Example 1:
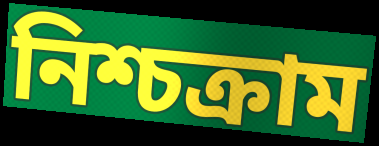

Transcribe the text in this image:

নিশ্চক্রাম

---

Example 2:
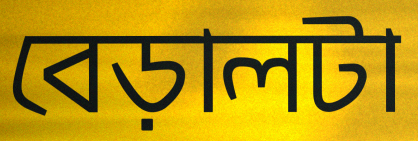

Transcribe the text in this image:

বেড়ালটা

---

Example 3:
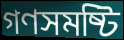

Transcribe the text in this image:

গণসমষ্টি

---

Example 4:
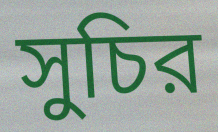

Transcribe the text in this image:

সুচির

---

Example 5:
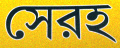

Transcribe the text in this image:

সেরহ